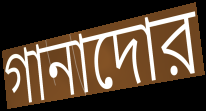
গানাদোর